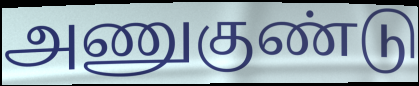
அணுகுண்டு